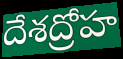
దేశద్రోహ